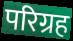
परिग्रह